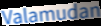
Valamudan